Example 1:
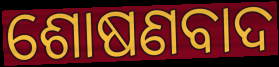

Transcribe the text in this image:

ଶୋଷଣବାଦ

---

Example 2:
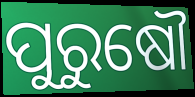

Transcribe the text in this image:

ପୁରୁଷୌ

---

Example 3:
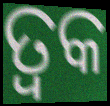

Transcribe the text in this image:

ତ୍ୱକ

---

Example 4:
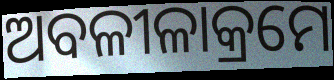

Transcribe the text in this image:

ଅବଳୀଳାକ୍ରମେ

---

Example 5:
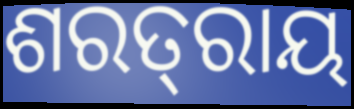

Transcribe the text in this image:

ଶରତ୍‌ରାୟ